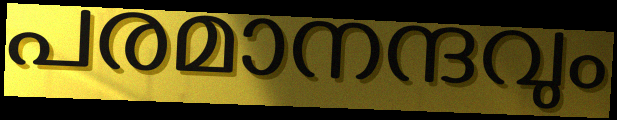
പരമാനന്ദവും